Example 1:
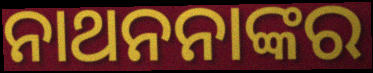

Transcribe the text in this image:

ନାଥନନାଙ୍କର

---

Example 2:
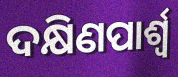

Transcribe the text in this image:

ଦକ୍ଷିଣପାର୍ଶ୍ବ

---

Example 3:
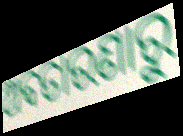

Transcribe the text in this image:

ଅବତାରଣାରୁ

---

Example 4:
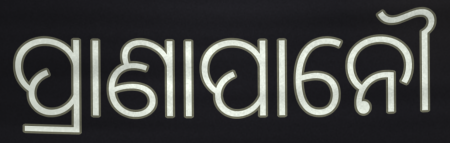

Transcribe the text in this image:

ପ୍ରାଣାପାନୌ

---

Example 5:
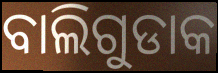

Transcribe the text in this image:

ବାଲିଗୁଡାକ